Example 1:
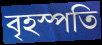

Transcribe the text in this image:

বৃহস্পতি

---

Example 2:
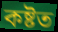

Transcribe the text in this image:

কষ্টত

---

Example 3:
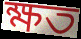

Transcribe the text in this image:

ক্ষত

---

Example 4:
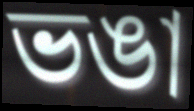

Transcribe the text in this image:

ভঙা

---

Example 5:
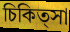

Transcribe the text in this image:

চিকিত্সা